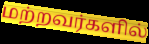
மற்றவர்களில்